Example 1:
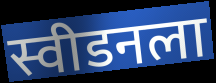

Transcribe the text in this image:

स्वीडनला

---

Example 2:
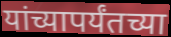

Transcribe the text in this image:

यांच्यापर्यंतच्या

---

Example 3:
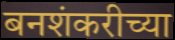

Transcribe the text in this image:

बनशंकरीच्या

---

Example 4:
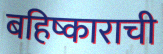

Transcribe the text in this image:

बहिष्काराची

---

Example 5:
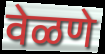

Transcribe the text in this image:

वेळणे